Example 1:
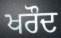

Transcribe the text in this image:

ਖਰੌਦ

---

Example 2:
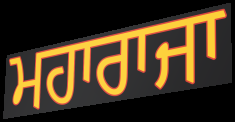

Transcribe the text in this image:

ਮਹਾਰਾਜਾ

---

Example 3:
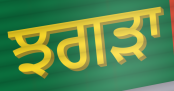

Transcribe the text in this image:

ਝਗੜਾ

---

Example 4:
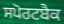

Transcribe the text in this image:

ਸਪੋਰਟਬੈਕ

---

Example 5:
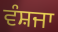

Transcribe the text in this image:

ਵੰਸ਼ਜਾ